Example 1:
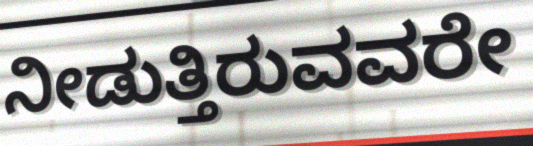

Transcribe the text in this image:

ನೀಡುತ್ತಿರುವವರೇ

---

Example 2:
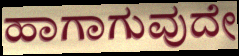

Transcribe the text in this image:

ಹಾಗಾಗುವುದೇ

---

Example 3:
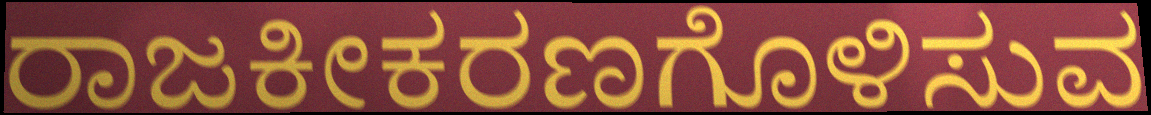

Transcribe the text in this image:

ರಾಜಕೀಕರಣಗೊಳಿಸುವ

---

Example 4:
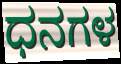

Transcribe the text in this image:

ಧನಗಳ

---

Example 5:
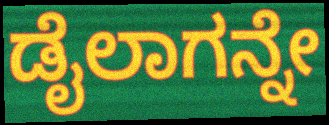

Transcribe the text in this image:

ಡೈಲಾಗನ್ನೇ